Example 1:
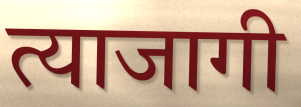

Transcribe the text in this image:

त्याजागी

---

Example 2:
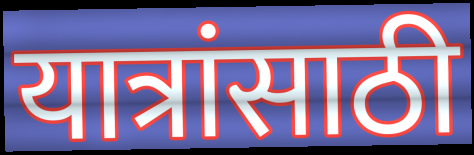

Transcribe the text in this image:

यात्रांसाठी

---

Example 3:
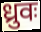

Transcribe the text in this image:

ध्रुवः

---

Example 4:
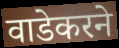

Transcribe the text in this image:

वाडेकरने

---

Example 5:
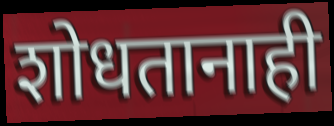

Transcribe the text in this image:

शोधतानाही